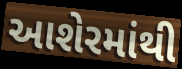
આશેરમાંથી